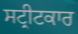
ਸਟ੍ਰੀਟਕਾਰ